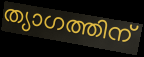
ത്യാഗത്തിന്